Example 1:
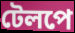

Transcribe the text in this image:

টেলপে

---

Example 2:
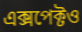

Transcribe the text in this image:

এক্সপেক্টও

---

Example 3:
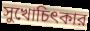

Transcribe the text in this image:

সুখোচিৎকার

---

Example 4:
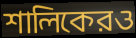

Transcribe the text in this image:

শালিকেরও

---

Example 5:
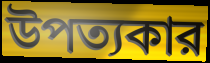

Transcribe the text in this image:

উপত্যকার